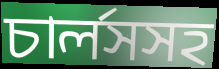
চার্লসসহ